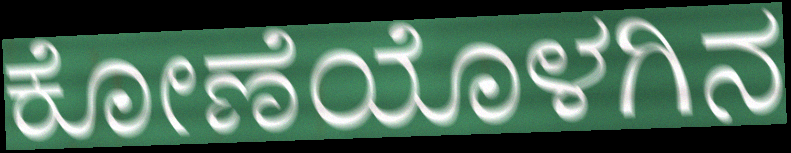
ಕೋಣೆಯೊಳಗಿನ